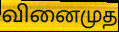
வினைமுத